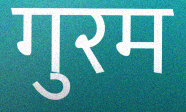
गुरम